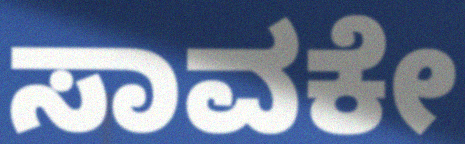
ಸಾವಕೇ